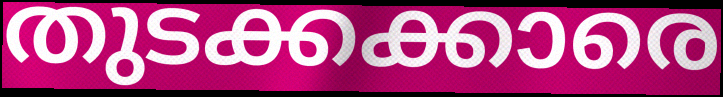
തുടക്കക്കാരെ